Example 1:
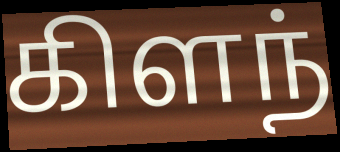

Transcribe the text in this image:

கிளந்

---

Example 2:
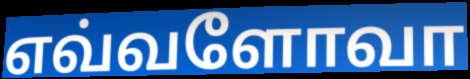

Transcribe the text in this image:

எவ்வளோவா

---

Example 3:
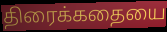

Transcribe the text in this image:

திரைக்கதையை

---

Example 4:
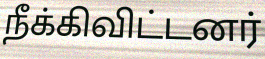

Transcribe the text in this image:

நீக்கிவிட்டனர்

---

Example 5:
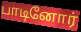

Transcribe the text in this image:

பாடினோர்